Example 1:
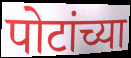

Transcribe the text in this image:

पोटांच्या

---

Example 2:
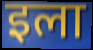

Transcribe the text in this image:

इला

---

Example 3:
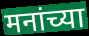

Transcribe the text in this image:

मनांच्या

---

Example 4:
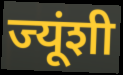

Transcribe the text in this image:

ज्यूंशी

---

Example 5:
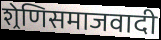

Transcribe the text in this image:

श्रेणिसमाजवादी